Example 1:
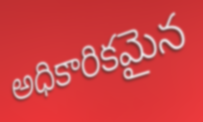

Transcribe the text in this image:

అధికారికమైన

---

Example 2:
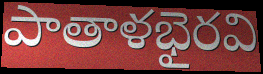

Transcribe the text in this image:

పాతాళభైరవి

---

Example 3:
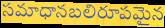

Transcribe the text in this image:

సమాధానబలిరూపమైన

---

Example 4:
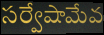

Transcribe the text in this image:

సర్వేషామేవ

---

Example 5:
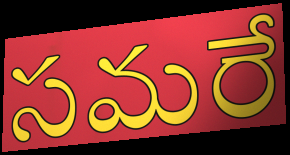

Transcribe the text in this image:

సమరే